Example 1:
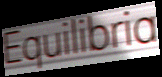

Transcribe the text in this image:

Equilibria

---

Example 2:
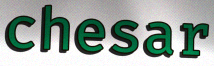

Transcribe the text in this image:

chesar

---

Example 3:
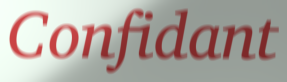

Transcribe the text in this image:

Confidant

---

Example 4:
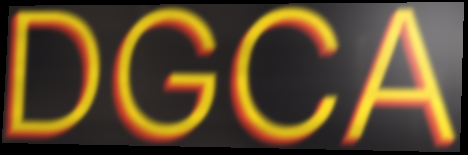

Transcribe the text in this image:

DGCA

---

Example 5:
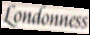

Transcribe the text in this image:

Londonness